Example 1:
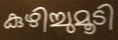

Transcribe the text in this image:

കുഴിച്ചുമൂടി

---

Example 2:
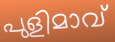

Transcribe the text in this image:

പുളിമാവ്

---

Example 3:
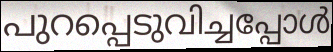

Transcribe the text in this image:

പുറപ്പെടുവിച്ചപ്പോൾ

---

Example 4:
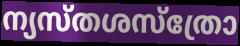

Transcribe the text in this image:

ന്യസ്തശസ്ത്രോ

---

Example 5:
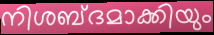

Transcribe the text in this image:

നിശബ്ദമാക്കിയും